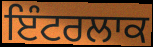
ਇੰਟਰਲਾਕ